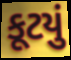
કૂટયું